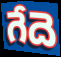
గేదె